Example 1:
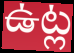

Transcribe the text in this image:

ఉట్ల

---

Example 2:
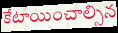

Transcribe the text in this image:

కేటాయించాల్సిన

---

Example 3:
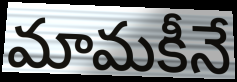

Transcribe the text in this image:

మామకీనే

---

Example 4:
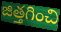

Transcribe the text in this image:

జిత్తగించి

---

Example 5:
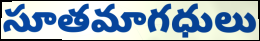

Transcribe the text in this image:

సూతమాగధులు